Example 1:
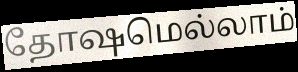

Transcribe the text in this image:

தோஷமெல்லாம்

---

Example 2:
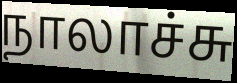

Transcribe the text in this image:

நாலாச்சு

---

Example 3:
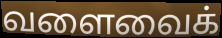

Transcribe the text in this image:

வளைவைக்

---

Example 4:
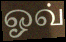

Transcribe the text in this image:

ஓவ்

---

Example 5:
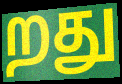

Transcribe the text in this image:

றது